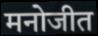
मनोजीत